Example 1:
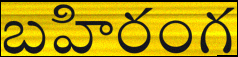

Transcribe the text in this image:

బహిరంగ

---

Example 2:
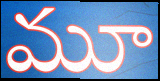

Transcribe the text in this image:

మూ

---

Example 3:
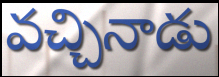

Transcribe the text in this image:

వచ్చినాడు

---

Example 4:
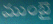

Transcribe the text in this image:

ముంబై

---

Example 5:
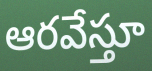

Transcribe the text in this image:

ఆరవేస్తూ